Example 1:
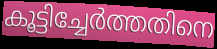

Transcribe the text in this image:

കൂട്ടിച്ചേർത്തതിനെ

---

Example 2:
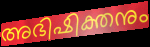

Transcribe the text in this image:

അഭിഷിക്തനും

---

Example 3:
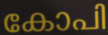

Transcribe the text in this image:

കോപി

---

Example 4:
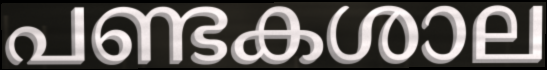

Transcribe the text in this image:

പണ്ടകശാല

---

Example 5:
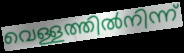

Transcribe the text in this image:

വെള്ളത്തിൽനിന്ന്